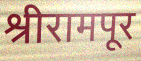
श्रीरामपूर